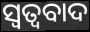
ସ୍ୱତ୍ୱବାଦ